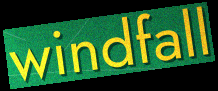
windfall